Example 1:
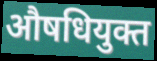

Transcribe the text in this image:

औषधियुक्त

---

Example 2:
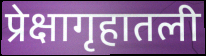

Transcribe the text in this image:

प्रेक्षागृहातली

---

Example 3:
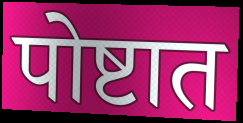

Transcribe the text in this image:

पोष्टात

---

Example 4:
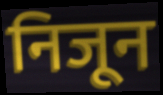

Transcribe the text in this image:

निजून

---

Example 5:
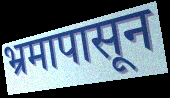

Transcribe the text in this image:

भ्रमापासून